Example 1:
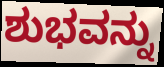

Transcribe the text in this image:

ಶುಭವನ್ನು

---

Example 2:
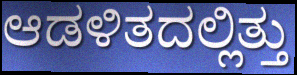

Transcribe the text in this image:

ಆಡಳಿತದಲ್ಲಿತ್ತು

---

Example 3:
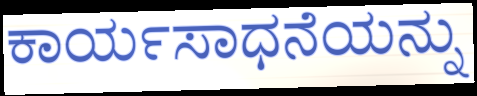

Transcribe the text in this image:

ಕಾರ್ಯಸಾಧನೆಯನ್ನು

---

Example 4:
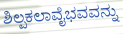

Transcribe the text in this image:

ಶಿಲ್ಪಕಲಾವೈಭವವನ್ನು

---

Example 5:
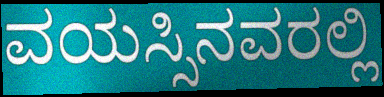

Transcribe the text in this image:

ವಯಸ್ಸಿನವರಲ್ಲಿ